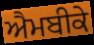
ਐਮਬੀਕੇ